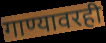
गाण्यावरही